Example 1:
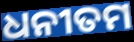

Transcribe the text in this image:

ଧନୀତମ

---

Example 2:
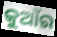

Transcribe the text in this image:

କୁଆଁର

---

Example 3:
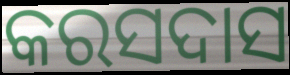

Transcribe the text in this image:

କରସଦାସ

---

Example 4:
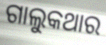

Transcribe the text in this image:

ଗାଲୁକଥାର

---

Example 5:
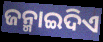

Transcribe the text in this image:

ଜନ୍ମାଇଦିଏ